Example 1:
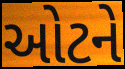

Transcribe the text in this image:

ઓટને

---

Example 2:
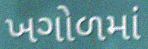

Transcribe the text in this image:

ખગોળમાં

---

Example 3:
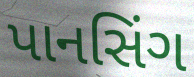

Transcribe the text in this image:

પાનસિંગ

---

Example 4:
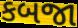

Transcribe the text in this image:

કબજા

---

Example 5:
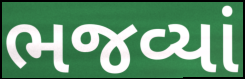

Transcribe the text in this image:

ભજવ્યાં